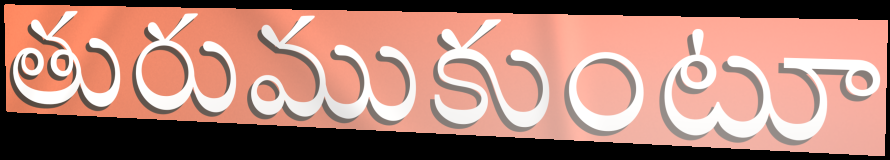
తురుముకుంటూ